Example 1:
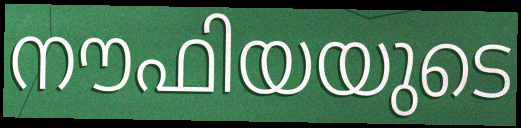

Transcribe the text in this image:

നൗഫിയയുടെ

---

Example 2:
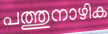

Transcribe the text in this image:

പത്തുനാഴിക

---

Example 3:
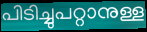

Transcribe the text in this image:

പിടിച്ചുപറ്റാനുള്ള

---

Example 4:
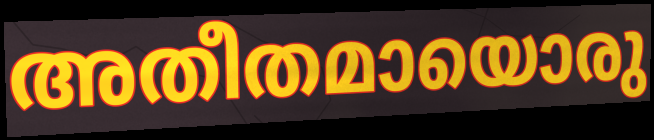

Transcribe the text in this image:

അതീതമായൊരു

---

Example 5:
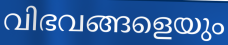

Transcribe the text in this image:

വിഭവങ്ങളെയും